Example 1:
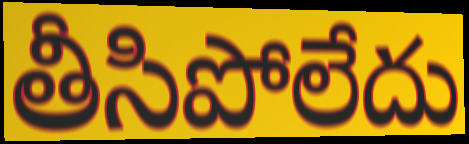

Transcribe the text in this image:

తీసిపోలేదు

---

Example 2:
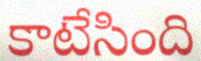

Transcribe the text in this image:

కాటేసింది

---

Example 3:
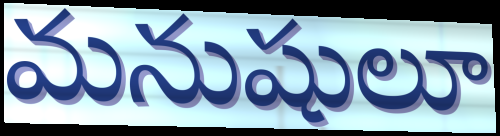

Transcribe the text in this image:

మనుషులూ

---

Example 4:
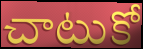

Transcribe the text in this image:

చాటుకో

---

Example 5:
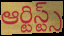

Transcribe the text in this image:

ఆర్టిస్ట్స్